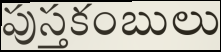
పుస్తకంబులు